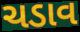
ચડાવ